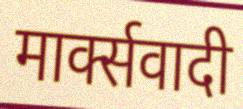
मार्क्सवादी